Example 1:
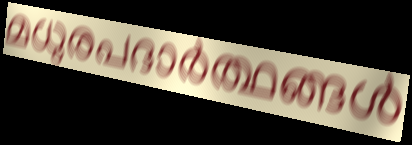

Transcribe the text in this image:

മധുരപദാർത്ഥങ്ങൾ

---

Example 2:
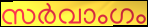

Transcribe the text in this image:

സർവാംഗം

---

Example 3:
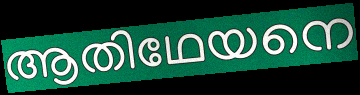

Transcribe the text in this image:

ആതിഥേയനെ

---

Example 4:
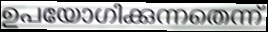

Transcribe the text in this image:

ഉപയോഗിക്കുന്നതെന്ന്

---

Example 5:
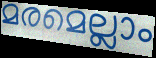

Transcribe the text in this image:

മരമെല്ലാം